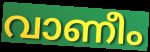
വാണീം